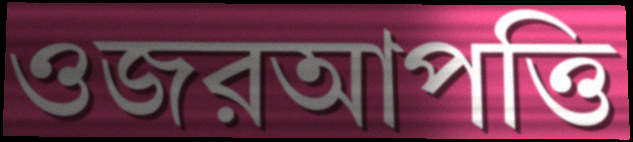
ওজরআপত্তি